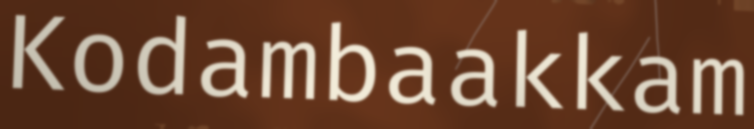
Kodambaakkam